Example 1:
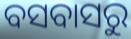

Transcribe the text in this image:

ବସବାସରୁ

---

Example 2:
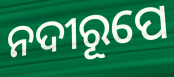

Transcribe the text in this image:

ନଦୀରୂପେ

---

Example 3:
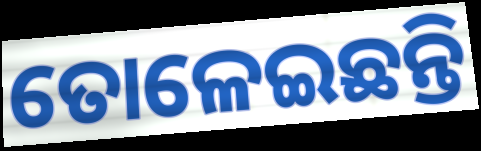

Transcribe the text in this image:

ତୋଳେଇଛନ୍ତି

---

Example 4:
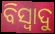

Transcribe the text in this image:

ବିସ୍ୱାଦୁ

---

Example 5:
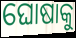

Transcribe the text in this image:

ଘୋଷାକୁ